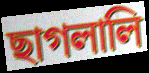
ছাগলালি